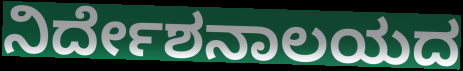
ನಿರ್ದೇಶನಾಲಯದ